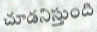
చూడనిస్తుంది